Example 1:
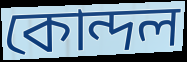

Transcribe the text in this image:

কোন্দল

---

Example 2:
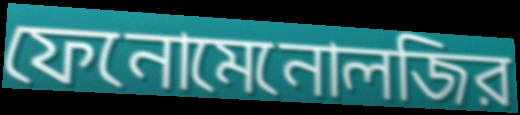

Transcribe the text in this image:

ফেনোমেনোলজির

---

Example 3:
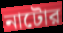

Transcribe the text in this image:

নাটোর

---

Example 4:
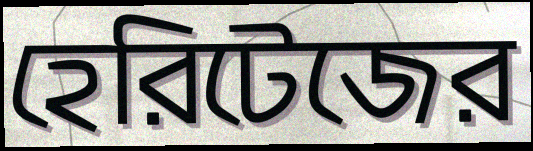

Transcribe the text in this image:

হেরিটেজের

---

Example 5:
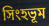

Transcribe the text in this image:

সিংহভূম